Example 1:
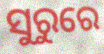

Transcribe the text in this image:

ସୁରୁରେ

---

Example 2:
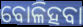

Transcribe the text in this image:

ବୋଳିହବା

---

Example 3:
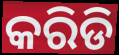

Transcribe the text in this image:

କରିଡି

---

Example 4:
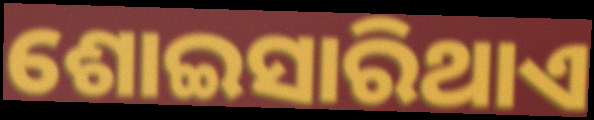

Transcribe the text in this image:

ଶୋଇସାରିଥାଏ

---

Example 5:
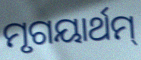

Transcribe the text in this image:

ମୃଗୟାର୍ଥମ୍